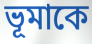
ভূমাকে